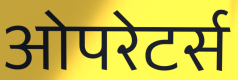
ओपरेटर्स